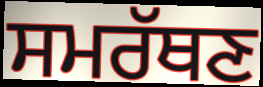
ਸਮਰੱਥਣ